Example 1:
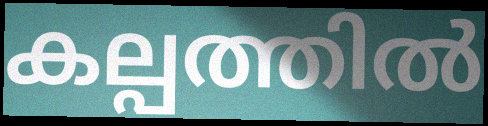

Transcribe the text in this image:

കല്പത്തിൽ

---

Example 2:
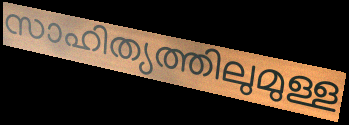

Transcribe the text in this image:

സാഹിത്യത്തിലുമുള്ള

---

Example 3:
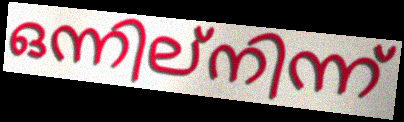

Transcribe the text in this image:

ഒന്നില്നിന്ന്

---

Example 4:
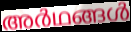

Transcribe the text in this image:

അർഥങ്ങൾ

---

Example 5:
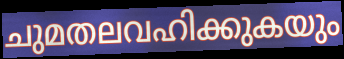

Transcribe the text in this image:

ചുമതലവഹിക്കുകയും